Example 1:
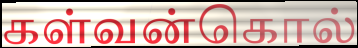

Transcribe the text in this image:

கள்வன்கொல்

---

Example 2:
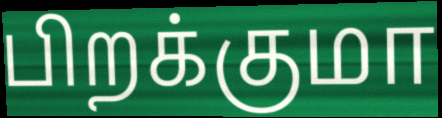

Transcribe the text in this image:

பிறக்குமா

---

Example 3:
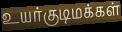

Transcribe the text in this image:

உயர்குடிமக்கள்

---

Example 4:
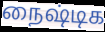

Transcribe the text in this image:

நைஷ்டிக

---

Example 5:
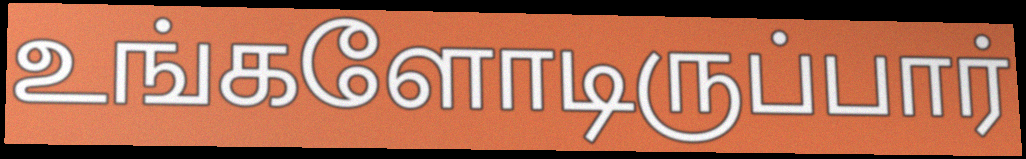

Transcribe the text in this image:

உங்களோடிருப்பார்